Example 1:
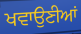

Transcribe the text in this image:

ਖਵਾਉਣੀਆਂ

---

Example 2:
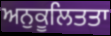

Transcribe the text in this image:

ਅਨੁਕੂਲਿਤਤਾ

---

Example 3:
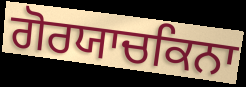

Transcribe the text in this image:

ਗੋਰਯਾਚਕਿਨਾ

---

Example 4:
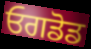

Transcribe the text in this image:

ਓਗਡੋਡ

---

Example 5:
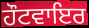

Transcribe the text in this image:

ਹੌਟਵਾਇਰ